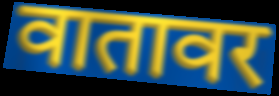
वातावर